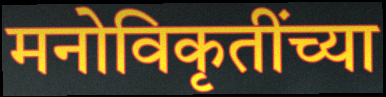
मनोविकृतींच्या